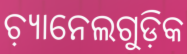
ଚ଼୍ୟାନେଲଗୁଡ଼ିକ